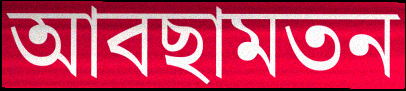
আবছামতন